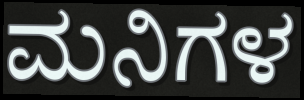
ಮನಿಗಳ